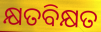
କ୍ଷତବିକ୍ଷତ